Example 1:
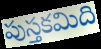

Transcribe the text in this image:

పుస్తకమిది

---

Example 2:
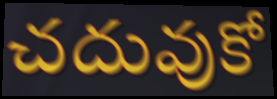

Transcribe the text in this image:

చదువుకో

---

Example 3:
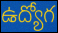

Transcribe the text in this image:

ఉద్యోగ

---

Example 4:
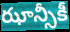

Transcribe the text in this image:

ఝాన్సీకీ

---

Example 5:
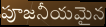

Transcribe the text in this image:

పూజనీయమైన